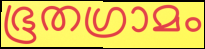
ഭൂതഗ്രാമം